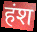
हंश